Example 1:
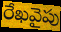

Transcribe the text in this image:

రేఖవైపు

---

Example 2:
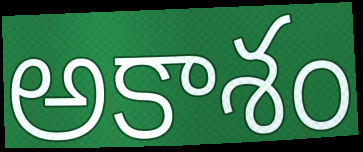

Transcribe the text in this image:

అకాశం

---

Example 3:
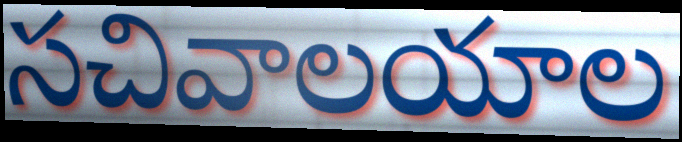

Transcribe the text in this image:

సచివాలయాల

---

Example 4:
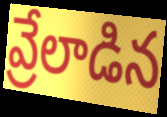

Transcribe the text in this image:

వ్రేలాడిన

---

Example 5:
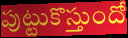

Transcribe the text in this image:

పుట్టుకొస్తుందో